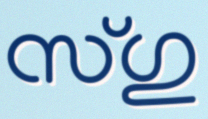
സ്ഗു